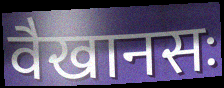
वैखानसः